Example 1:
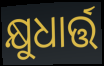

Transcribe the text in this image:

କ୍ଷୁଧାର୍ତ୍ତ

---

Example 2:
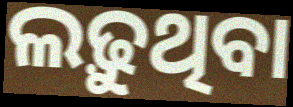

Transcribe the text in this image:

ଲଢ଼ୁଥିବା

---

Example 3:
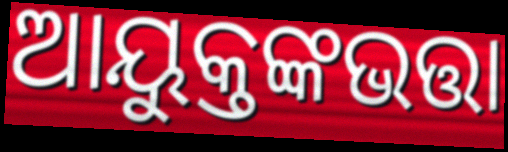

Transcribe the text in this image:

ଆୟୁକ୍ତଙ୍କଭତ୍ତା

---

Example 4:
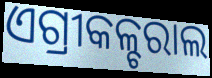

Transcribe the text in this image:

ଏଗ୍ରୀକଳ୍ଚରାଲ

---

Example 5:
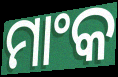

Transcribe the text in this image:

ମାଂକ